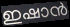
ഇഷാൻ